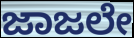
ಜಾಜಲೇ